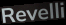
Revelli